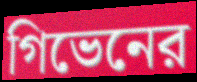
গিভেনের